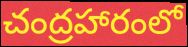
చంద్రహారంలో